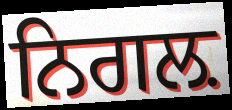
ਨਿਗਲ਼